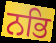
ਨਭਿ